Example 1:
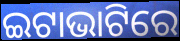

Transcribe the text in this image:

ଇଟାଭାଟିରେ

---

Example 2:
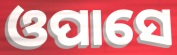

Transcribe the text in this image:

ଓପାସେ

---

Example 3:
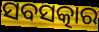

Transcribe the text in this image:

ସବସତ୍କାର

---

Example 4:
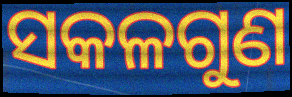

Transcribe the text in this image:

ସକଳଗୁଣ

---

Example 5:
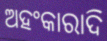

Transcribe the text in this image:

ଅହଂକାରାଦି